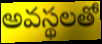
అవస్థలతో